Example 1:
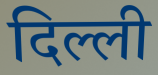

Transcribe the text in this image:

दिल्ली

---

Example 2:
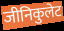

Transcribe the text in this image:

जीनिकुलेट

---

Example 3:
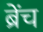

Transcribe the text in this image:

ब्रेंच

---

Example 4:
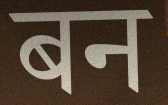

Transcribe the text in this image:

बन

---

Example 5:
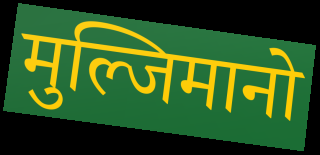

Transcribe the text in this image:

मुल्जिमानो